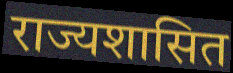
राज्यशासित